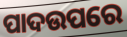
ପାଦଉପରେ